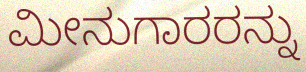
ಮೀನುಗಾರರನ್ನು